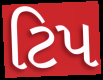
ટિપ